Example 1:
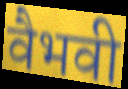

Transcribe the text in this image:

वैभवी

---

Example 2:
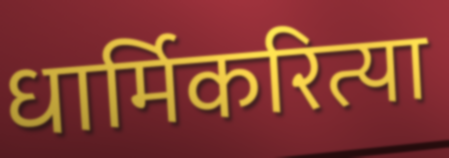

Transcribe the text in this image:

धार्मिकरित्या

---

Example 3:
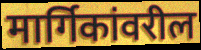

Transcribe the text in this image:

मार्गिकांवरील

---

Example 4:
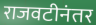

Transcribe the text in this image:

राजवटीनंतर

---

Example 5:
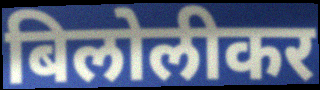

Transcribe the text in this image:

बिलोलीकर